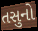
તસુનો